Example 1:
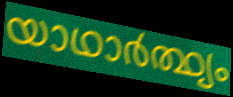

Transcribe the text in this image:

യാഥാർത്ഥ്യം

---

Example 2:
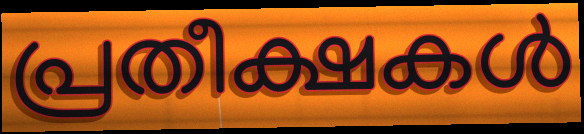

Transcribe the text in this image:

പ്രതീക്ഷകൾ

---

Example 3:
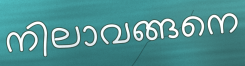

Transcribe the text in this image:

നിലാവങ്ങനെ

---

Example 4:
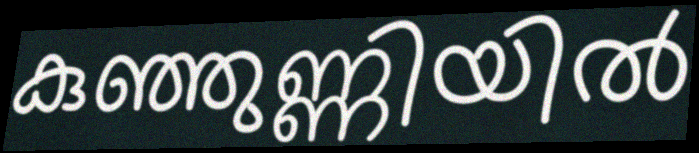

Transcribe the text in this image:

കുഞ്ഞുണ്ണിയിൽ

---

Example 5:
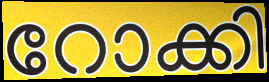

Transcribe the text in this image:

റോക്കി